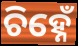
ଚିହ୍ନେଁ